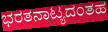
ಭರತನಾಟ್ಯದಂತಹ